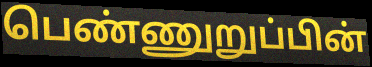
பெண்ணுறுப்பின்